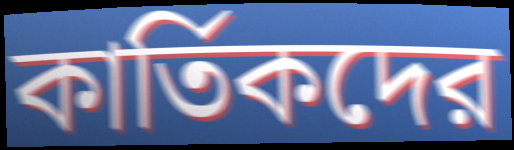
কার্তিকদের